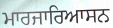
ਮਾਰਜਾਰਿਆਸਨ